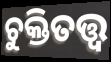
ଚୁକ୍ତିତତ୍ତ୍ଵ